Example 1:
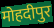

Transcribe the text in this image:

मोहदीपुर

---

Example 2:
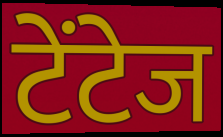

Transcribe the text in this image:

टेंटेज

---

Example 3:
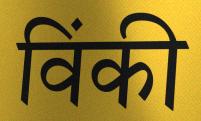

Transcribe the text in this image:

विंकी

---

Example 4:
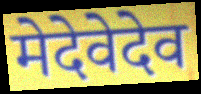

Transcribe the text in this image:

मेदेवेदेव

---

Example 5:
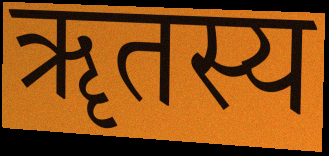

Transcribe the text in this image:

ॠतस्य